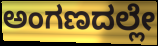
ಅಂಗಣದಲ್ಲೇ